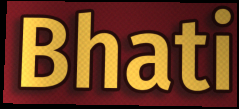
Bhati